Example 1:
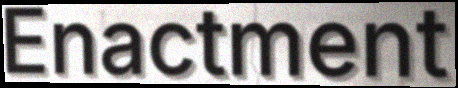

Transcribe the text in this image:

Enactment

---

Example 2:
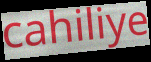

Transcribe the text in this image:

cahiliye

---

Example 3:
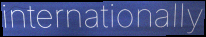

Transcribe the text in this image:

internationally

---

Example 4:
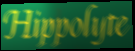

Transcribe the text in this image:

Hippolyte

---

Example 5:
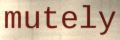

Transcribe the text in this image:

mutely